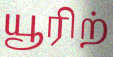
யூரிற்